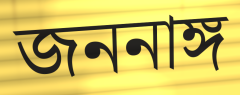
জননাঙ্গ